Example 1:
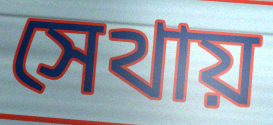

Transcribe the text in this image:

সেথায়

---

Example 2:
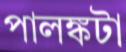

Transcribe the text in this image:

পালঙ্কটা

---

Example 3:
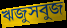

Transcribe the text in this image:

ঋজুসবুজ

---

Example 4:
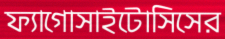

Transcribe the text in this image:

ফ্যাগোসাইটোসিসের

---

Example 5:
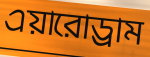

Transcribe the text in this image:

এয়ারোড্রাম